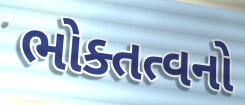
ભોક્તત્વનો